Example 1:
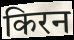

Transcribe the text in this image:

किरन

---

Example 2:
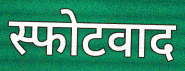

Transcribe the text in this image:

स्फोटवाद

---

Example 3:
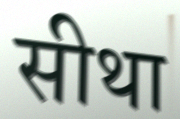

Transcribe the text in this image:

सीथा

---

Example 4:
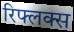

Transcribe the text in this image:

रिफ्लक्स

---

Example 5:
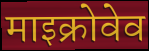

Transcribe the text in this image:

माइक्रोवेव